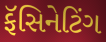
ફૅસિનેટિંગ